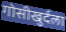
गोसीखुर्दला